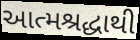
આત્મશ્રદ્ધાથી